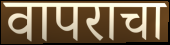
वापराचा